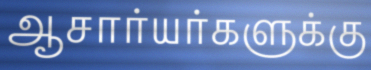
ஆசார்யர்களுக்கு